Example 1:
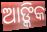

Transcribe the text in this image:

ଆଙ୍କିକ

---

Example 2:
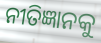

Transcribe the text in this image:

ନୀତିଜ୍ଞାନକୁ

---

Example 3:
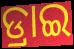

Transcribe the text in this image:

ଡ୍ରାଇ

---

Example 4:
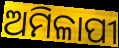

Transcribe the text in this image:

ଅମିଳାପୀ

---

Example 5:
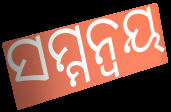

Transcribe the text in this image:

ସମ୍ମନ୍ୱୟ